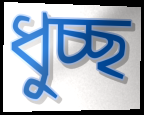
ধুচ্ছ